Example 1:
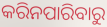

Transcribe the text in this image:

କରିନପାରିବାରୁ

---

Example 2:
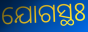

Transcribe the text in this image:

ଯୋଗସ୍ଥଃ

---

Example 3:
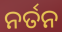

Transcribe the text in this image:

ନର୍ତନ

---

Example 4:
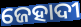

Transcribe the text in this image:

ଜେହାଦୀ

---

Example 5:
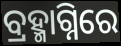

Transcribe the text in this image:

ବ୍ରହ୍ମାଗ୍ନିରେ